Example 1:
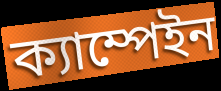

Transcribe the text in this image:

ক্যাম্পেইন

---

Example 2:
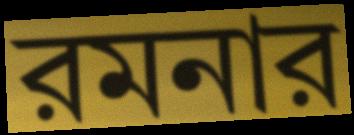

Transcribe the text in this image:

রমনার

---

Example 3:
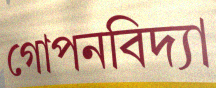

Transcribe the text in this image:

গোপনবিদ্যা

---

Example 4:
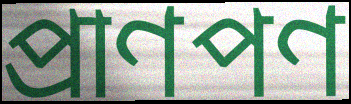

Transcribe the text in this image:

প্রাণপণ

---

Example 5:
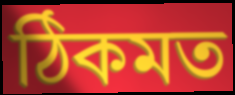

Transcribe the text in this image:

ঠিকমত